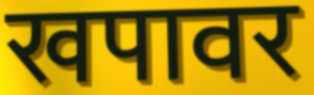
खपावर